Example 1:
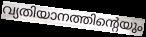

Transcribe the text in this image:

വ്യതിയാനത്തിന്റെയും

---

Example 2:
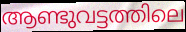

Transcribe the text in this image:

ആണ്ടുവട്ടത്തിലെ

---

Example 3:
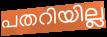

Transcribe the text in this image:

പതറിയില്ല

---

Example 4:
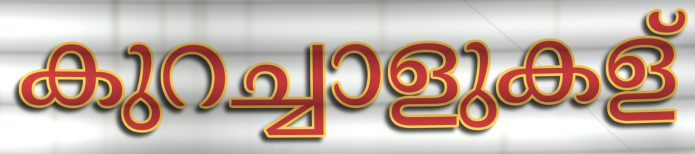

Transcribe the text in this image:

കുറച്ചാളുകള്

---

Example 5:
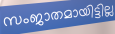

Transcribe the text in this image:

സംജാതമായിട്ടില്ല